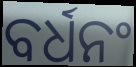
ବର୍ଧନଂ